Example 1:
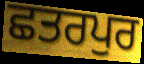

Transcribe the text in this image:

ਛਤਰਪੁਰ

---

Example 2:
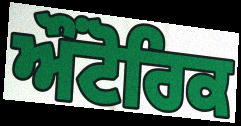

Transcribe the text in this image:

ਔਂਟੋਰਿਕ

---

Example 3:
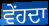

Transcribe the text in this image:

ਵੇਂਹਦਾ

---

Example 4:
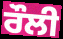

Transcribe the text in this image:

ਰੌਲੀ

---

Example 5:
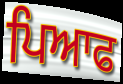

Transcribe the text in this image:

ਪਿਆਫ